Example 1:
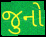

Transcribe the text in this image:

જુનો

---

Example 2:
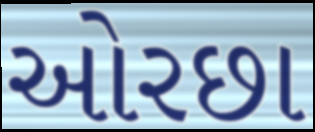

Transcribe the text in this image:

ઓરછા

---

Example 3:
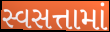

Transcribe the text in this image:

સ્વસત્તામાં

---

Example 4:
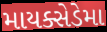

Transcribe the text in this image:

માયક્સેડેમા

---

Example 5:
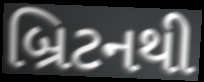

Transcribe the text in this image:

બ્રિટનથી